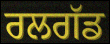
ਰਲਗੱਡ